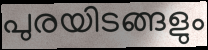
പുരയിടങ്ങളും